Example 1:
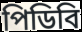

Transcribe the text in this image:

পিডিবি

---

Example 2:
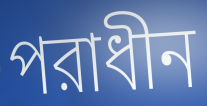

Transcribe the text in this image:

পরাধীন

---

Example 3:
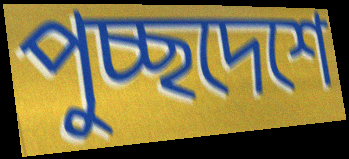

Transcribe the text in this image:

পুচ্ছদেশে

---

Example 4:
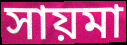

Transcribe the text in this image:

সায়মা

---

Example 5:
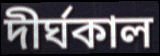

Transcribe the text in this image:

দীর্ঘকাল